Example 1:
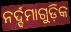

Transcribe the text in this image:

ନର୍ଦ୍ଦମାଗୁଡ଼ିକ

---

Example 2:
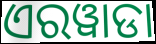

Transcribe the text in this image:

ଏରୱାଡା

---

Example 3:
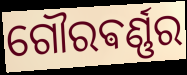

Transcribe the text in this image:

ଗୌରଵର୍ଣ୍ଣର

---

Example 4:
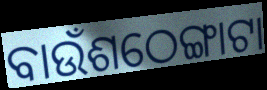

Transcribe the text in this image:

ବାଉଁଶଠେଙ୍ଗାଟା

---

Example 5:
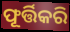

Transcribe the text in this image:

ଫୂର୍ତ୍ତିକରି